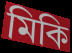
মিকি